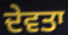
ਦੇਵਤਾ